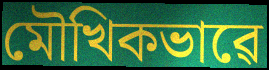
মৌখিকভাৱে